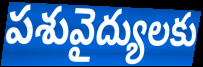
పశువైద్యులకు